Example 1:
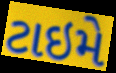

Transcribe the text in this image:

ટાઇમે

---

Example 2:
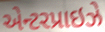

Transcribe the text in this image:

એન્ટરપ્રાઇઝે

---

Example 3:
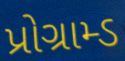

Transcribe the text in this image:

પ્રોગ્રામ્ડ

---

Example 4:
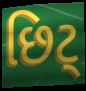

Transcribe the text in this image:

છિટ્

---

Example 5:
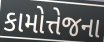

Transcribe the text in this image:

કામોત્તેજના